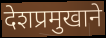
देशप्रमुखाने